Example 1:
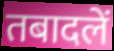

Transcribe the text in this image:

तबादलें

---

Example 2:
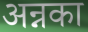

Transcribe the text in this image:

अन्नका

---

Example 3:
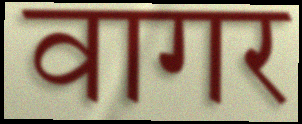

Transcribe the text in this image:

वागर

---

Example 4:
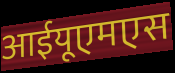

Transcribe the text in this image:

आईयूएमएस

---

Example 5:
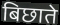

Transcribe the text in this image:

बिछाते